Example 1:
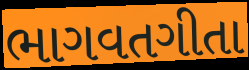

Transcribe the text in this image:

ભાગવતગીતા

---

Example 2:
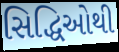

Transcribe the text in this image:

સિદ્ધિઓથી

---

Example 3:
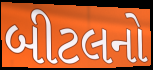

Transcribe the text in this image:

બીટલનો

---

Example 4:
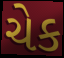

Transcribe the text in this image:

ચેક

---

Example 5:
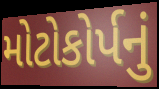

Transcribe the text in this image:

મોટોકોર્પનું